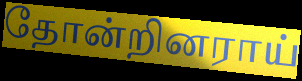
தோன்றினராய்